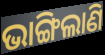
ଭାଙ୍ଗିଲାଣି